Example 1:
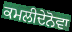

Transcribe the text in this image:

ਕਮਲੀਦੇਨੋਵਾ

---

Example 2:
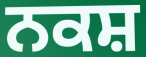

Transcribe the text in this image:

ਨਕਸ਼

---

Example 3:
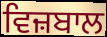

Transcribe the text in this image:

ਵਿਜ਼ਬਾਲ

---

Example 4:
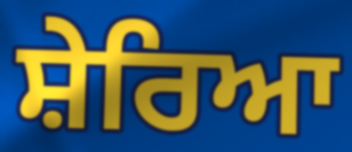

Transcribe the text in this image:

ਸ਼ੇਰਿਆ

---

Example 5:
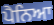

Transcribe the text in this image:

ਪੈਨਿਆ